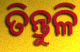
ତିନ୍ତୁଳି